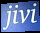
jivi